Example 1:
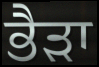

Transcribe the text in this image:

ਭੈੜਾ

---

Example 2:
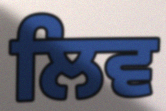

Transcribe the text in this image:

ਲਿਵ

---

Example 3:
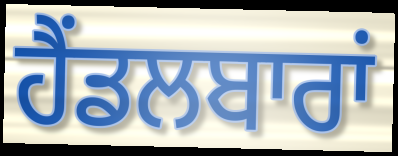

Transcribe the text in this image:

ਹੈਂਡਲਬਾਰਾਂ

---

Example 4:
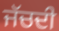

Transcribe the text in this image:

ਜੱਚਦੀ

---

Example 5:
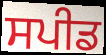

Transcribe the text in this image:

ਸਪੀਡ